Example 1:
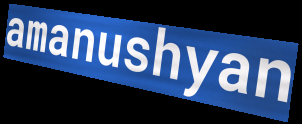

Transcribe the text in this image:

amanushyan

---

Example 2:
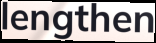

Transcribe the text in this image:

lengthen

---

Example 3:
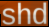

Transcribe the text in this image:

shd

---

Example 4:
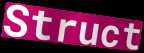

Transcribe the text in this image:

Struct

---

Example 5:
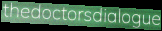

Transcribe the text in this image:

thedoctorsdialogue